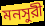
মনসুরী